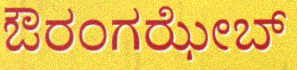
ಔರಂಗಝೇಬ್